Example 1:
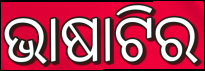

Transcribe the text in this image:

ଭାଷାଟିର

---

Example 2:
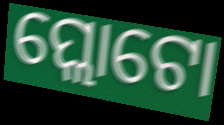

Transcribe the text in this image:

ପ୍ଲୋଟୋ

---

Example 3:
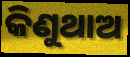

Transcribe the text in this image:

କିଣୁଥାଅ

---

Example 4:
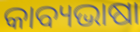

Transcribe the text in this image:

କାବ୍ୟଭାଷା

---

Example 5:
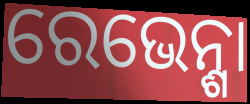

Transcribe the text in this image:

ରେଭେନ୍ଶା